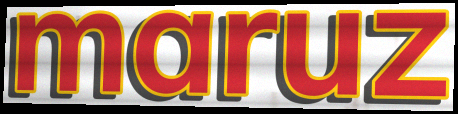
maruz